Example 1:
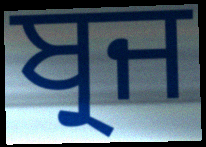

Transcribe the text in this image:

ਬ੍ਰਜ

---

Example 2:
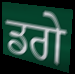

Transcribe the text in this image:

ਡਗੇ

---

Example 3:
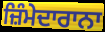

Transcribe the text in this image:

ਜ਼ਿੰਮੇਦਾਰਾਨਾ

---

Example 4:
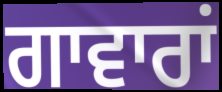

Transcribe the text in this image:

ਗਾਵਾਰਾਂ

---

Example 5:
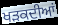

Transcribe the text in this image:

ਖੜਕਦੀਆਂ